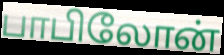
பாபிலோன்